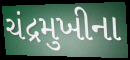
ચંદ્રમુખીના